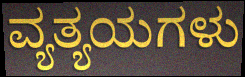
ವ್ಯತ್ಯಯಗಳು